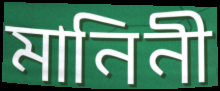
মানিনী